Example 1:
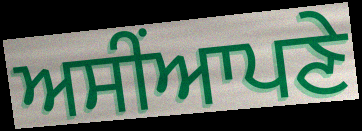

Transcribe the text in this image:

ਅਸੀਂਆਪਣੇ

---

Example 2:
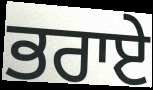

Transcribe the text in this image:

ਭਰਾਏ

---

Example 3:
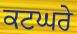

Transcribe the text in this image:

ਕਟਘਰੇ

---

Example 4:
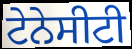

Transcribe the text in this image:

ਟੇਨੇਸੀਟੀ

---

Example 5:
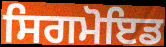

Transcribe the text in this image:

ਸਿਗਮੋਇਡ